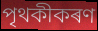
পৃথকীকৰণ